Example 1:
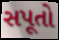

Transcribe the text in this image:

સપૂતો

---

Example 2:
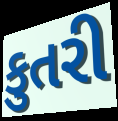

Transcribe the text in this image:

કુતરી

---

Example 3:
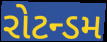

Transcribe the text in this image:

રોટન્ડમ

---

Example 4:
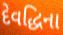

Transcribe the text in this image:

દેવદ્ધિના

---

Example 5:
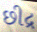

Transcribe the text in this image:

છીદ્ર